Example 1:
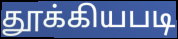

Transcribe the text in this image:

தூக்கியபடி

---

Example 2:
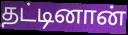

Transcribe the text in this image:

தட்டினான்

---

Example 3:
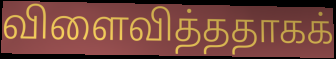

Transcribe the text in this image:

விளைவித்ததாகக்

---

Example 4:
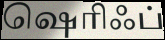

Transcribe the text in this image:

ஷெரிஃப்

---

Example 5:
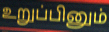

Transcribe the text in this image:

உறுப்பினும்